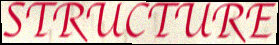
STRUCTURE